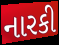
નારકી